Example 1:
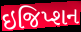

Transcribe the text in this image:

ઇજિપ્શન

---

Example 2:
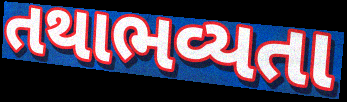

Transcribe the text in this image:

તથાભવ્યતા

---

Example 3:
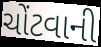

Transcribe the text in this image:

ચોંટવાની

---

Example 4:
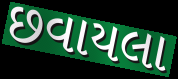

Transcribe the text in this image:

છવાયલા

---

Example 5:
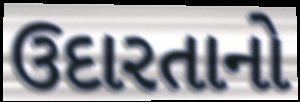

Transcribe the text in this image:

ઉદારતાનો